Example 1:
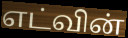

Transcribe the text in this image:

எட்வின்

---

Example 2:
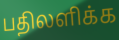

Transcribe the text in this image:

பதிலளிக்க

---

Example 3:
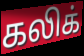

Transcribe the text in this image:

கலிக்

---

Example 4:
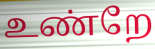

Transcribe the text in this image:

உண்றே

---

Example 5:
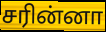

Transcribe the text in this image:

சரின்னா